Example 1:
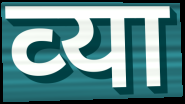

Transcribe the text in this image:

व्‍या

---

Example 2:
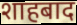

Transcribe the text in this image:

शाहबाद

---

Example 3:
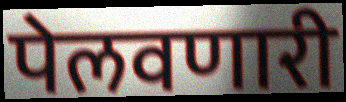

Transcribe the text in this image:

पेलवणारी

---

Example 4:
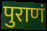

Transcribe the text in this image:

पुराणं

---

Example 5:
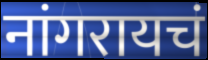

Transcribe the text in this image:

नांगरायचं